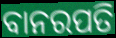
ବାନରପତି